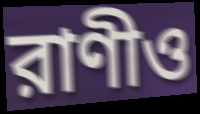
রাণীও